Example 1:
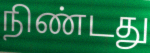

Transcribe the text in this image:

நிண்டது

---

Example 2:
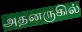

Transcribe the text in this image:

அதனருகில்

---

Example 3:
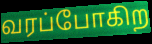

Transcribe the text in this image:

வரப்போகிற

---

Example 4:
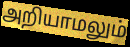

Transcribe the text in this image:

அறியாமலும்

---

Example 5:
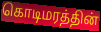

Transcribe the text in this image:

கொடிமரத்தின்